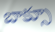
బాక్సూ